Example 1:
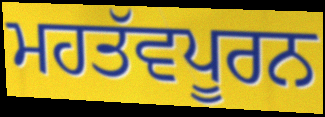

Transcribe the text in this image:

ਮਹਤੱਵਪੂਰਨ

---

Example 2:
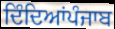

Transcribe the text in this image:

ਦਿੰਦਿਆਂਪੰਜਾਬ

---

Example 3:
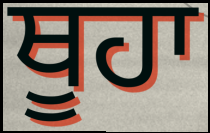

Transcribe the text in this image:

ਥੂਹਾ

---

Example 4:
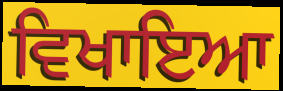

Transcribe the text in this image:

ਵਿਖਾਇਆ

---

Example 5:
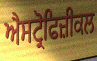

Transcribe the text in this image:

ਐਸਟ੍ਰੋਫਿਜ਼ੀਕਲ